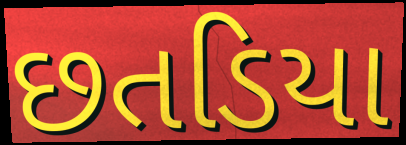
છતડિયા